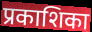
प्रकाशिका